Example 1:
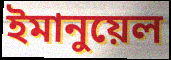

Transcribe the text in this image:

ইমানুয়েল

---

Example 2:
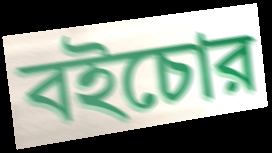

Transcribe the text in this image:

বইচোর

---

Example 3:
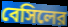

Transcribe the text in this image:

বেসিলের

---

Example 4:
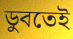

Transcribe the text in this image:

ডুবতেই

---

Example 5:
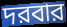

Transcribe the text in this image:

দরবার